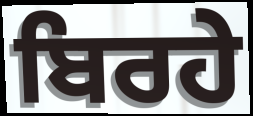
ਬਿਰਹੇ